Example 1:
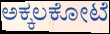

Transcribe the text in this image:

ಅಕ್ಕಲಕೋಟೆ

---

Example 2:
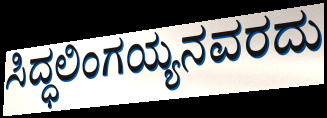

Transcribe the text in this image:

ಸಿದ್ಧಲಿಂಗಯ್ಯನವರದು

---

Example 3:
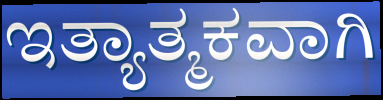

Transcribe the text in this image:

ಇತ್ಯಾತ್ಮಕವಾಗಿ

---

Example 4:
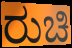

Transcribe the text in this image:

ರುಚಿ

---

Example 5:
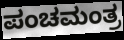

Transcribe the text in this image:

ಪಂಚಮಂತ್ರ